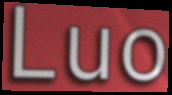
Luo